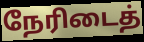
நேரிடைத்